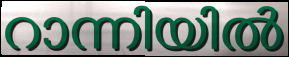
റാന്നിയിൽ